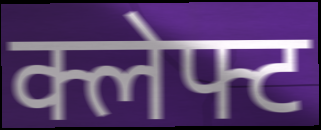
क्लेफ्ट